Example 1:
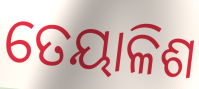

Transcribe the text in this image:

ତେୟାଳିଶ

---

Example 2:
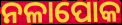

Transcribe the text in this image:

ନଳାପୋକ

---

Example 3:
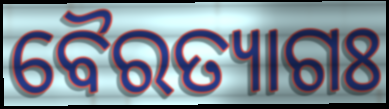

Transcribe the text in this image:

ବୈରତ୍ୟାଗଃ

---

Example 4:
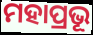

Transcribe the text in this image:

ମହାପ୍ରଭୂ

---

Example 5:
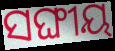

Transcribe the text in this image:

ସଙ୍ଘୀୟ